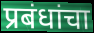
प्रबंधांचा